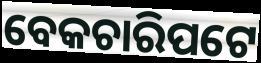
ବେକଚାରିପଟେ